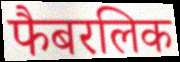
फैबरलिक